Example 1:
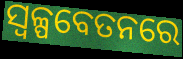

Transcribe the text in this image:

ସ୍ୱଳ୍ପବେତନରେ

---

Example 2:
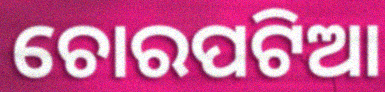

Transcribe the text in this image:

ଚୋରପଟିଆ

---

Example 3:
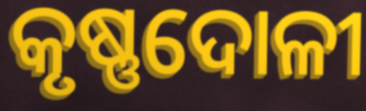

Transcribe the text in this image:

କୃଷ୍ଣଦୋଳୀ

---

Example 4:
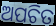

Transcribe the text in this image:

ଅପଚିତ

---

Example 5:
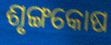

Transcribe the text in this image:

ଶୃଙ୍ଗକୋଷ